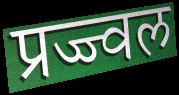
प्रज्ज्वल